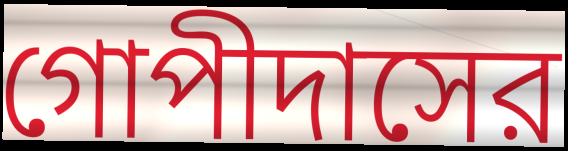
গোপীদাসের